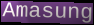
Amasung